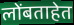
लोंबताहेत